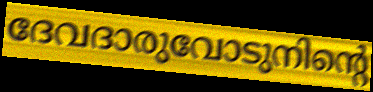
ദേവദാരുവോടുനിന്റെ